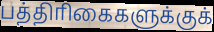
பத்திரிகைகளுக்குக்